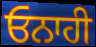
ਓਨਾਹੀ